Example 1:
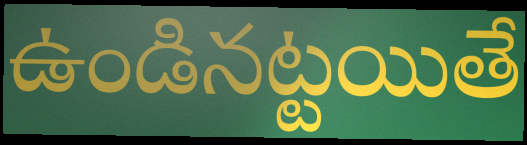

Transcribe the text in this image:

ఉండినట్టయితే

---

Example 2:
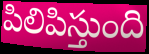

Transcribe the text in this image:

పిలిపిస్తుంది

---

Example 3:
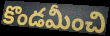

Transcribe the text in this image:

కొండమీంచి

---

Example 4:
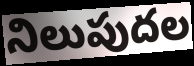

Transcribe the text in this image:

నిలుపుదల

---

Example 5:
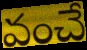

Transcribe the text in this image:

వంచే